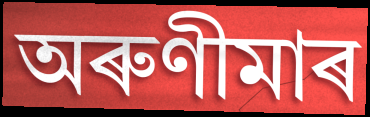
অৰুণীমাৰ